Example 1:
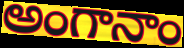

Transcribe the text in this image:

అంగానాం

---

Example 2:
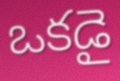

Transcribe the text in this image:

ఒకడై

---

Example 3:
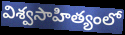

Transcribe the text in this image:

విశ్వసాహిత్యంలో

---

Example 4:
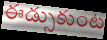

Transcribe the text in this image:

ఈడ్సుకుంట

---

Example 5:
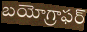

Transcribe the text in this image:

బయోగ్రాఫర్